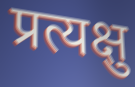
प्रत्यक्षु